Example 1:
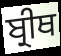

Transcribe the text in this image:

ਬ੍ਰੀਥ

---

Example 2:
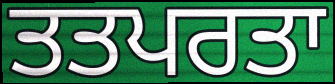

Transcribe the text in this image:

ਤਤਪਰਤਾ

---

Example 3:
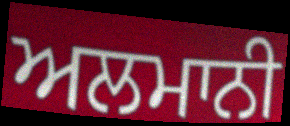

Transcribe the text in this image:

ਅਲਮਾਨੀ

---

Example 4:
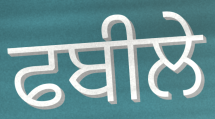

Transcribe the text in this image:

ਫਬੀਲੇ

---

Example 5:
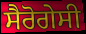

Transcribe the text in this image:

ਸੈਰੋਗੇਸੀ